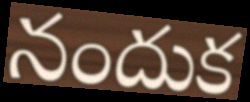
నందుక